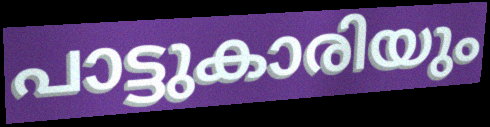
പാട്ടുകാരിയും